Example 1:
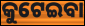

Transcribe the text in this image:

କୁଟେଇବା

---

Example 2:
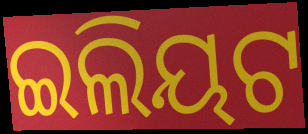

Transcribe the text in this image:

ଇଲିୟଟ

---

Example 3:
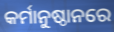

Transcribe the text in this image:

କର୍ମାନୁଷ୍ଠାନରେ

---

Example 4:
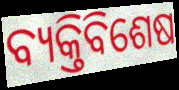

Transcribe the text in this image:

ବ୍ୟକ୍ତିବିଶେଷ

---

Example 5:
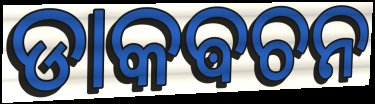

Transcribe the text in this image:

ଡାକଵଚନ